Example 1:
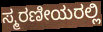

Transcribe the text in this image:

ಸ್ಮರಣೀಯರಲ್ಲಿ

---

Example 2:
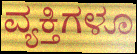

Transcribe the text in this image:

ವ್ಯಕ್ತಿಗಳೂ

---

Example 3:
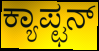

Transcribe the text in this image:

ಕ್ಯಾಪ್ಟನ್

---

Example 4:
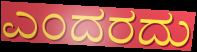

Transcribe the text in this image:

ಎಂದರದು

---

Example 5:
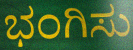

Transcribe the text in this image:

ಭಂಗಿಸು